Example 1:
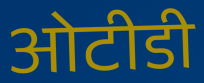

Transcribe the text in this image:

ओटीडी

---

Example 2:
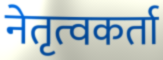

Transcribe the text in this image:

नेतृत्‍वकर्ता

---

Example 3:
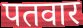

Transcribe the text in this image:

पतवार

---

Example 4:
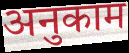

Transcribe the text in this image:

अनुकाम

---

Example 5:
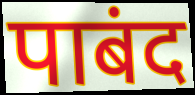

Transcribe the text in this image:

पाबंद